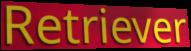
Retriever